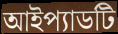
আইপ্যাডটি